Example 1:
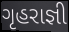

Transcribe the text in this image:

ગૃહરાજ્ઞી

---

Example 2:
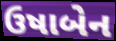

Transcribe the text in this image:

ઉષાબેન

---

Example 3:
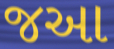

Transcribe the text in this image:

જઆ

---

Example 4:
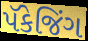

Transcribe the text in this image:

પૅકેજિંગ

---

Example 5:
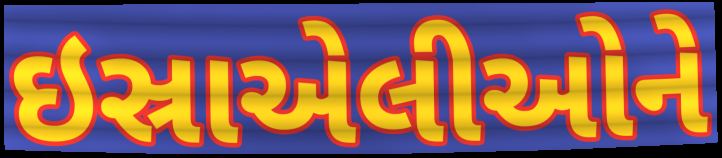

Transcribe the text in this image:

ઇસ્રાએલીઓને